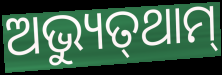
ଅଭ୍ୟୁତ୍‌ଥାମ୍